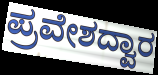
ಪ್ರವೇಶದ್ವಾರ